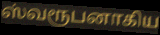
ஸ்வரூபனாகிய